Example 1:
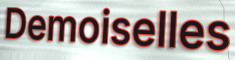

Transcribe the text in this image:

Demoiselles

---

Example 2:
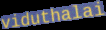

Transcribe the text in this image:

viduthalai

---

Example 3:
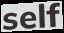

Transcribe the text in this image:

self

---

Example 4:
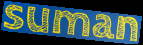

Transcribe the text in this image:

suman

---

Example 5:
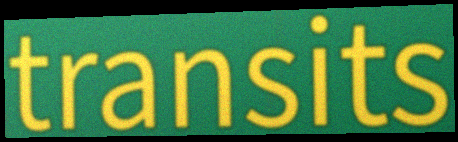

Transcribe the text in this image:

transits